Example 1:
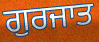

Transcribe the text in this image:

ਗੁਰਜਾਤ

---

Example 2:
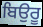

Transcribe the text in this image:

ਬਿਉਰੂ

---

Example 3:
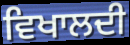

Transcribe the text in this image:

ਵਿਖਾਲਦੀ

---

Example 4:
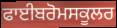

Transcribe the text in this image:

ਫਾਈਬਰੋਮਸਕੂਲਰ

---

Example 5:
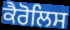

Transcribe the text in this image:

ਕੈਰੋਲਿਸ